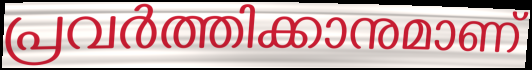
പ്രവർത്തിക്കാനുമാണ്